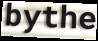
bythe